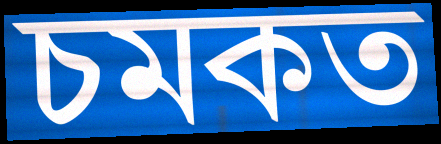
চমকত